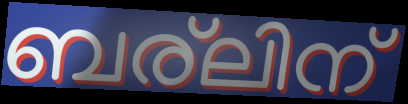
ബര്ലിന്